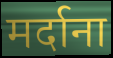
मर्दाना